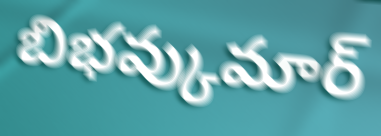
బిభవ్కుమార్